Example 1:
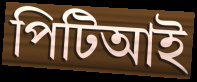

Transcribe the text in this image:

পিটিআই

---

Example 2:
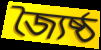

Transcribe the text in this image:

জ্যৈষ্ঠ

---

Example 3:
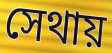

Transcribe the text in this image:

সেথায়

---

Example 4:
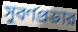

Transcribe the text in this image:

সুবর্ণপ্রভার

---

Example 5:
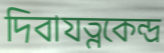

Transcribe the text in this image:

দিবাযত্নকেন্দ্র